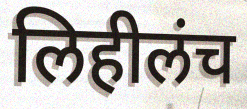
लिहीलंच